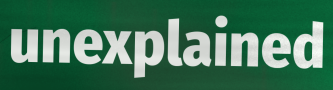
unexplained